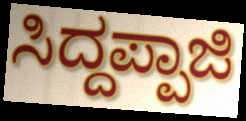
ಸಿದ್ದಪ್ಪಾಜಿ